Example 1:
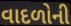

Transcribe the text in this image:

વાદળોની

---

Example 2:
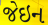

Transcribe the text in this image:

જેઇન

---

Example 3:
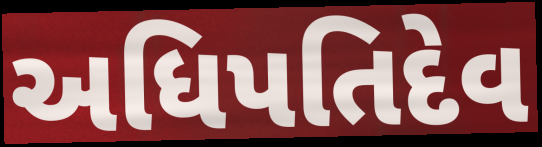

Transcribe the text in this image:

અધિપતિદેવ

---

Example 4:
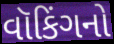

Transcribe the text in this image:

વૉકિંગનો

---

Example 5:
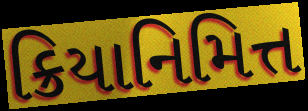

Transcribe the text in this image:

ક્રિયાનિમિત્ત